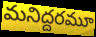
మనిద్దరమూ